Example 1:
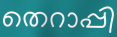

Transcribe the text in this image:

തെറാപ്പി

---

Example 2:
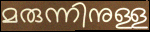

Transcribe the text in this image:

മരുന്നിനുള്ള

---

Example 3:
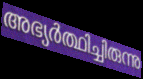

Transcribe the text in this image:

അഭ്യർത്ഥിച്ചിരുന്നു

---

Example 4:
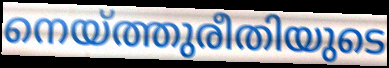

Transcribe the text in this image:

നെയ്ത്തുരീതിയുടെ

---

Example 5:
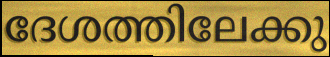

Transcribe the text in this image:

ദേശത്തിലേക്കു